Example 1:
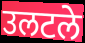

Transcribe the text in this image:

उलटले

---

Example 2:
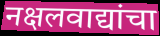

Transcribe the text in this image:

नक्षलवाद्यांचा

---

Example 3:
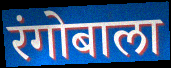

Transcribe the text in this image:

रंगोबाला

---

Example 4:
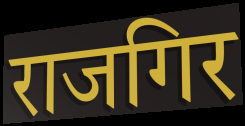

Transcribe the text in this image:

राजगिर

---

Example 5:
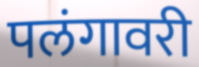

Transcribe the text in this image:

पलंगावरी